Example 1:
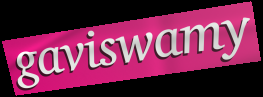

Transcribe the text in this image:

gaviswamy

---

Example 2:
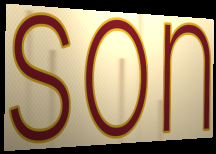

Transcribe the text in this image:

son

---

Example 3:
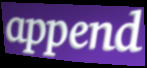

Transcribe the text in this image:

append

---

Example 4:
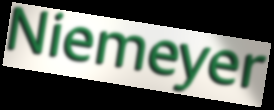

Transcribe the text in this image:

Niemeyer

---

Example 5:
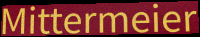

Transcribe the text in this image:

Mittermeier